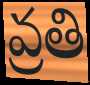
వ్రతి